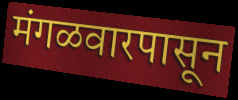
मंगळवारपासून